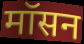
मॉसन